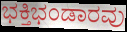
ಭಕ್ತಿಭಂಡಾರವು